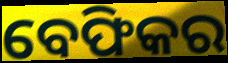
ବେଫିକର